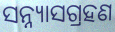
ସନ୍ନ୍ୟାସଗ୍ରହଣ